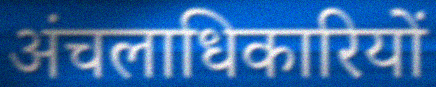
अंचलाधिकारियों